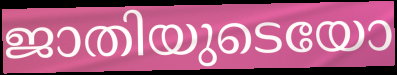
ജാതിയുടെയോ